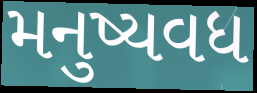
મનુષ્યવધ